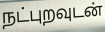
நட்புறவுடன்